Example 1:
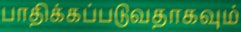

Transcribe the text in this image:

பாதிக்கப்படுவதாகவும்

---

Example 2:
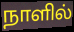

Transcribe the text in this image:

நாளில்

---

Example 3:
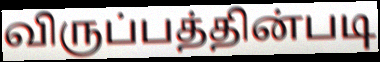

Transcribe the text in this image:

விருப்பத்தின்படி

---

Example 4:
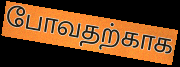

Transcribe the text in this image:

போவதற்காக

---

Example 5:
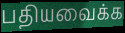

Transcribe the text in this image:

பதியவைக்க